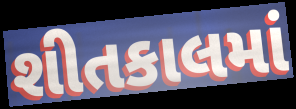
શીતકાલમાં